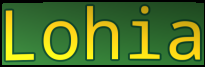
Lohia